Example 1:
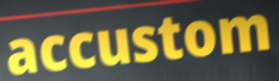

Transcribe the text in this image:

accustom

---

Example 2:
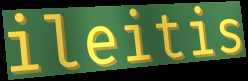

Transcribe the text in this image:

ileitis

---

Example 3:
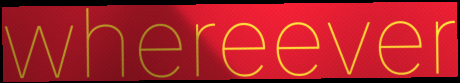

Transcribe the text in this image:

whereever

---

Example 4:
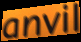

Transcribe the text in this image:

anvil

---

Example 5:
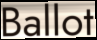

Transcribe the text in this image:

Ballot